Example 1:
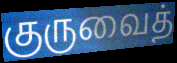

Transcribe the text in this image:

குருவைத்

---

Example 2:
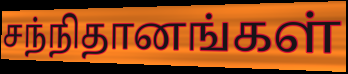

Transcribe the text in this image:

சந்நிதானங்கள்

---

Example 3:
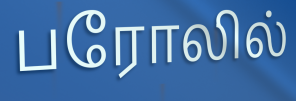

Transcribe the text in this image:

பரோலில்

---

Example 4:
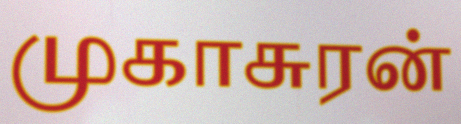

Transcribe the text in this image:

முகாசுரன்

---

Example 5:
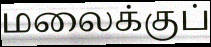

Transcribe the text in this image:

மலைக்குப்